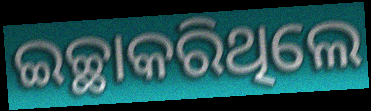
ଇଚ୍ଛାକରିଥିଲେ